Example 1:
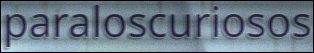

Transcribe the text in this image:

paraloscuriosos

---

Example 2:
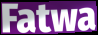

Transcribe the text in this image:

Fatwa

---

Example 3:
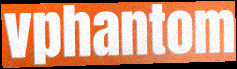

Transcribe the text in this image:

vphantom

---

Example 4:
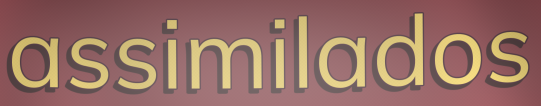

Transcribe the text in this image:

assimilados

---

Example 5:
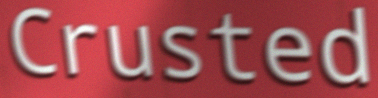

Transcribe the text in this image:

Crusted